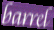
barrel